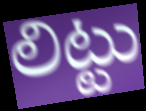
లిట్టు